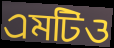
এমটিও